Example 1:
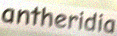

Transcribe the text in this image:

antheridia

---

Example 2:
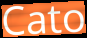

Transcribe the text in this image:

Cato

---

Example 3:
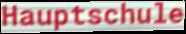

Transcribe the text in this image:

Hauptschule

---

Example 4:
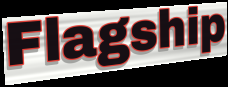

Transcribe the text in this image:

Flagship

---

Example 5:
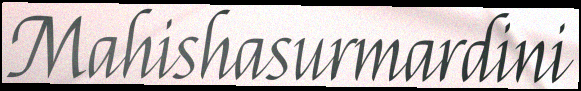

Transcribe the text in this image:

Mahishasurmardini